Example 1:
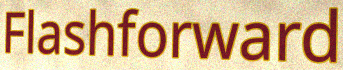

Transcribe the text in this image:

Flashforward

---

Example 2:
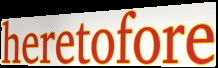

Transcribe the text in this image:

heretofore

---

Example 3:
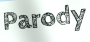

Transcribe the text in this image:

Parody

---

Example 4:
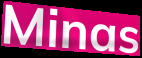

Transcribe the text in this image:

Minas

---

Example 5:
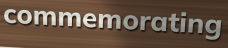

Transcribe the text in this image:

commemorating